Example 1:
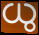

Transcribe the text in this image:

ധു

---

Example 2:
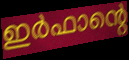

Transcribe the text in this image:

ഇർഫാന്റെ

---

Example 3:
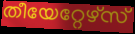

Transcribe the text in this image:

തീയേറ്റേഴ്സ്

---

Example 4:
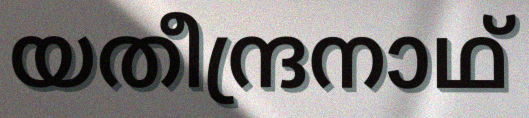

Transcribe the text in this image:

യതീന്ദ്രനാഥ്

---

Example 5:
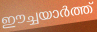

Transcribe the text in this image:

ഈച്ചയാർത്ത്